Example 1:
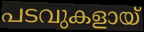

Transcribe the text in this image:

പടവുകളായ്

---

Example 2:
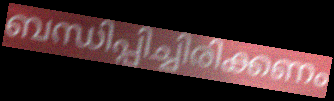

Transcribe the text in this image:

ബന്ധിപ്പിച്ചിരിക്കണം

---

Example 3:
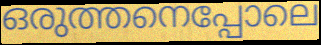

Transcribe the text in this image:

ഒരുത്തനെപ്പോലെ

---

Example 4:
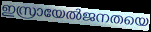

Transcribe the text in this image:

ഇസ്രായേൽജനതയെ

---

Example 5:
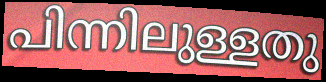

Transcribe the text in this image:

പിന്നിലുള്ളതു